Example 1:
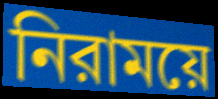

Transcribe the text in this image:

নিরাময়ে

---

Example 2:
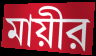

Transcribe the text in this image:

মায়ীর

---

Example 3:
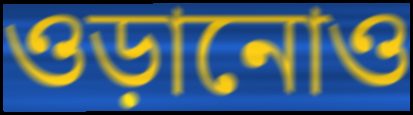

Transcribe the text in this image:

ওড়ানোও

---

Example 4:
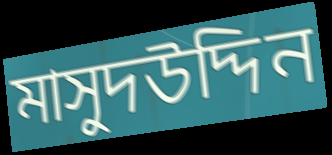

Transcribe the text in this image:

মাসুদউদ্দিন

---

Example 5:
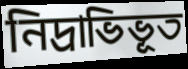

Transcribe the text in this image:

নিদ্রাভিভূত